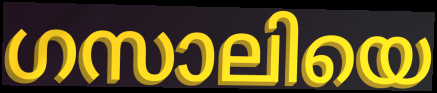
ഗസാലിയെ